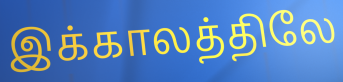
இக்காலத்திலே